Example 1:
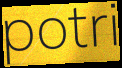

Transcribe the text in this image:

potri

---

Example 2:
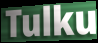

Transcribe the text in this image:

Tulku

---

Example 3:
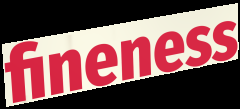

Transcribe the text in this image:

fineness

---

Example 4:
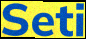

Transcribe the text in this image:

Seti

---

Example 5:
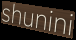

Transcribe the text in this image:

shunini